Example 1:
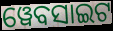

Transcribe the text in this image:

ୱେବସାଇଟ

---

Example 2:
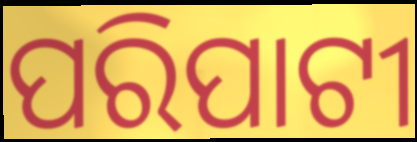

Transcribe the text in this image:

ପରିପାଟୀ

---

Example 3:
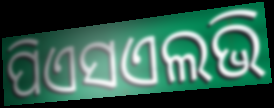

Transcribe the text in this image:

ପିଏସଏଲଭି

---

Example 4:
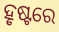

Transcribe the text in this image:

ହୃଷ୍ଟରେ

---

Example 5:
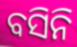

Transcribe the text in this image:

ବସିନି